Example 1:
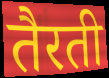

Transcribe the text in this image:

तैरती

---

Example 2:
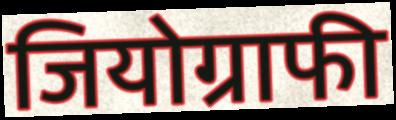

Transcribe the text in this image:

जियोग्राफी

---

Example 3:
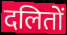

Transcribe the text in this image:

दलितों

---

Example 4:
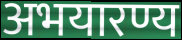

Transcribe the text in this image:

अभयारण्य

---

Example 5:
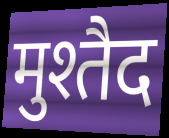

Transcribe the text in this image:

मुश्तैद